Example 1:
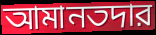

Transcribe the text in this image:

আমানতদার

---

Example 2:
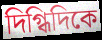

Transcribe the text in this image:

দিগ্ধিদিকে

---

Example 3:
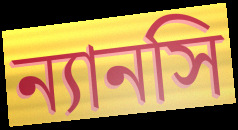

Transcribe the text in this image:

ন্যানসি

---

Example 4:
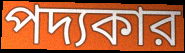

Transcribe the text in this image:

পদ্যকার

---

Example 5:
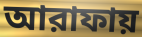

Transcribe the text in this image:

আরাফায়